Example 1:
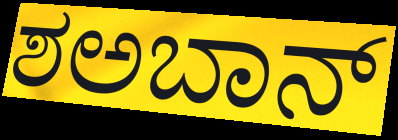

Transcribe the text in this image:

ಶಅಬಾನ್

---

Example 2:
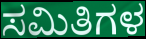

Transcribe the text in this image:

ಸಮಿತಿಗಳ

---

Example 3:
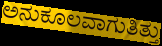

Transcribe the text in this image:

ಅನುಕೂಲವಾಗುತಿತ್ತು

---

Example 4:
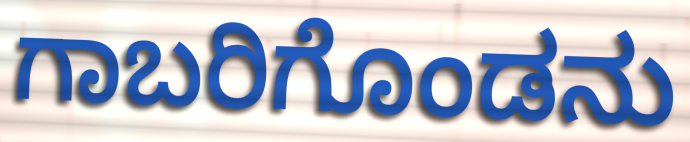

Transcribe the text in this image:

ಗಾಬರಿಗೊಂಡನು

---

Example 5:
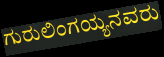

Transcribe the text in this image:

ಗುರುಲಿಂಗಯ್ಯನವರು